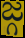
జ్గ